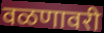
वळणावरी